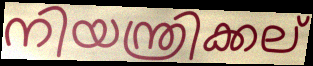
നിയന്ത്രിക്കല്